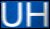
UH